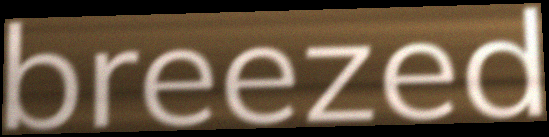
breezed